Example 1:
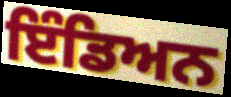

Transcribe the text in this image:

ਇੰਡਿਅਨ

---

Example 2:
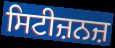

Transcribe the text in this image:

ਸਿਟੀਜ਼ਨਜ਼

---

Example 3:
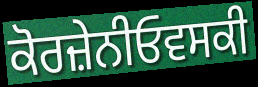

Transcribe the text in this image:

ਕੋਰਜ਼ੇਨੀਓਵਸਕੀ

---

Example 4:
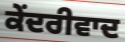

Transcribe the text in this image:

ਕੇਂਦਰੀਵਾਦ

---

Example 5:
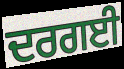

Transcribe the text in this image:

ਦਰਗਈ